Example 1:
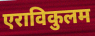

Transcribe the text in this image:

एराविकुलम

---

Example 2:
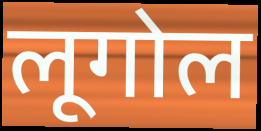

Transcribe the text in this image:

लूगोल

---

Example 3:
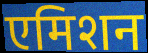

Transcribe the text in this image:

एमिशन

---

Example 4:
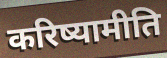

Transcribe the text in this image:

करिष्यामीति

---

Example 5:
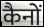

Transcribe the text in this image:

कैनों